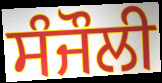
ਸੰਜੌਲੀ